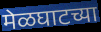
मेळघाटच्या